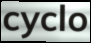
cyclo